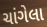
ચાંગેલા